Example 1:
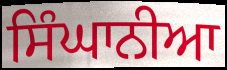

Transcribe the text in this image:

ਸਿੰਘਾਨੀਆ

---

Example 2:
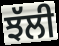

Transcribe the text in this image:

ਝੱਲੀ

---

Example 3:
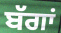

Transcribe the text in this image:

ਬੱਗਾਂ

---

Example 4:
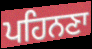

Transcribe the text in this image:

ਪਹਿਨਣਾ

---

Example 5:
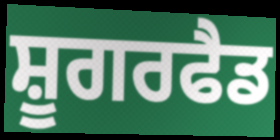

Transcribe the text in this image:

ਸ਼ੂਗਰਫੈਡ